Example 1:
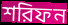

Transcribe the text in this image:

শরিফন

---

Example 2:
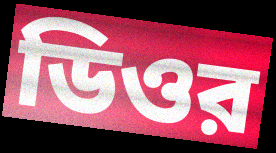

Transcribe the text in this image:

ডিওর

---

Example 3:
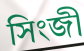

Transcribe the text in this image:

সিংজী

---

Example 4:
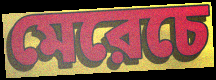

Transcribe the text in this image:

মেরেচে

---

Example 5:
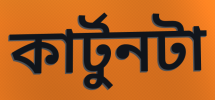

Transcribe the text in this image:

কার্টুনটা